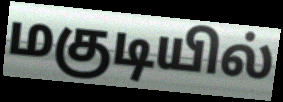
மகுடியில்